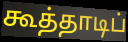
கூத்தாடிப்